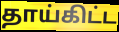
தாய்கிட்ட